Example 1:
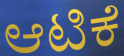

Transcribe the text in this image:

ಆಟಿಕೆ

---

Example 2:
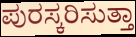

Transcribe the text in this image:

ಪುರಸ್ಕರಿಸುತ್ತಾ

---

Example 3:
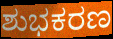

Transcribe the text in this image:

ಶುಭಕರಣ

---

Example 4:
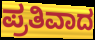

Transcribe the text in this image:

ಪ್ರತಿವಾದ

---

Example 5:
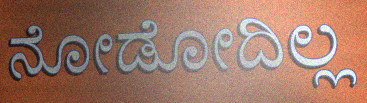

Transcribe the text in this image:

ನೋಡೋದಿಲ್ಲ